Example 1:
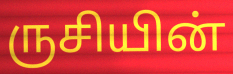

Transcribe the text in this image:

ருசியின்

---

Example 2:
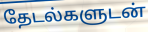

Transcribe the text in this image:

தேடல்களுடன்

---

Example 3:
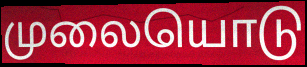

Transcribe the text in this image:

முலையொடு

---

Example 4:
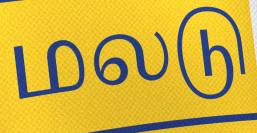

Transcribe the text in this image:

மலடு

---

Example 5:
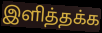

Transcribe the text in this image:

இளித்தக்க